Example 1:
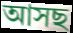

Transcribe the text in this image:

আসছ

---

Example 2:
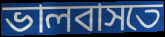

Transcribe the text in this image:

ভালবাসতে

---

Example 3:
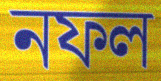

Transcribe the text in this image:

নফল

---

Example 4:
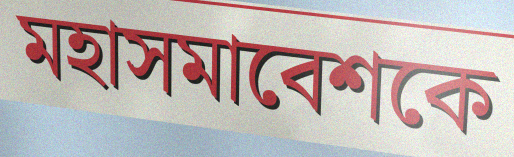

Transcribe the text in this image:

মহাসমাবেশকে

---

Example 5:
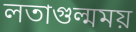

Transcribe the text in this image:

লতাগুল্মময়